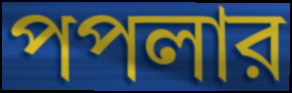
পপলার